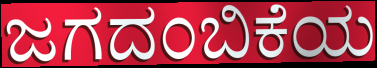
ಜಗದಂಬಿಕೆಯ